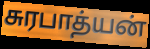
சுரபாத்யன்